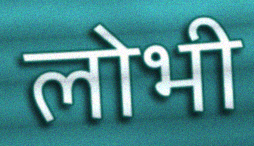
लोभी